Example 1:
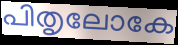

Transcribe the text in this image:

പിതൃലോകേ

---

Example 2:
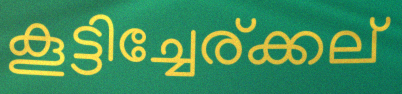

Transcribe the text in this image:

കൂട്ടിച്ചേര്ക്കല്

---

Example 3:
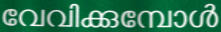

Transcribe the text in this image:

വേവിക്കുമ്പോൾ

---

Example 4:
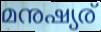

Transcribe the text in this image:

മനുഷ്യര്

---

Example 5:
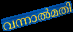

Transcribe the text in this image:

വന്നാൽമതി